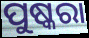
ପୁଷ୍କରା